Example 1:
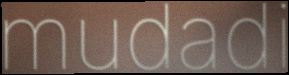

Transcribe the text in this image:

mudadi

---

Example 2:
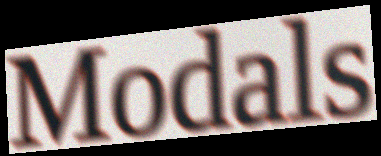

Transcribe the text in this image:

Modals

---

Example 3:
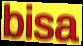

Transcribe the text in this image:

bisa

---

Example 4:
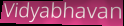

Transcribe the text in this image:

Vidyabhavan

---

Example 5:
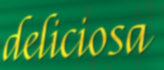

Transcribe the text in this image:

deliciosa